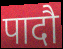
पादौ